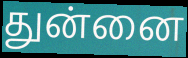
துன்னை